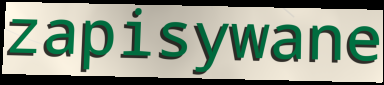
zapisywane